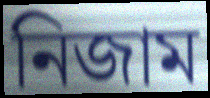
নিজাম